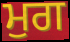
ਮੁਗ